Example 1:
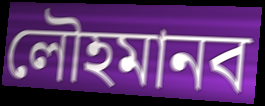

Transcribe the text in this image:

লৌহমানব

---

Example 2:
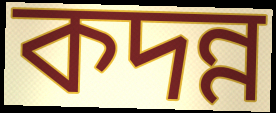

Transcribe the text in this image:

কদন্ন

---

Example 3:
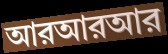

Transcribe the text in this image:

আরআরআর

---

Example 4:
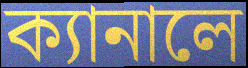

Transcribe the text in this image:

ক্যানালে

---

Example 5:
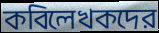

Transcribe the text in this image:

কবিলেখকদের